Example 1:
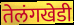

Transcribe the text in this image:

तेलंगखेडी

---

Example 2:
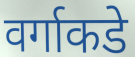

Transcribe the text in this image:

वर्गाकडे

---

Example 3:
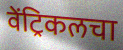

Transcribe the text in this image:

वेंट्रिकलचा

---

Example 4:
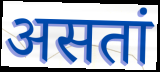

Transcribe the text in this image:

असतां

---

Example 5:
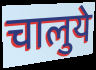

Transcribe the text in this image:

चालुये